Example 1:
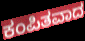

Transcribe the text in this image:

ಕಂಪಿತವಾದ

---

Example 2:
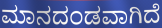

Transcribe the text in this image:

ಮಾನದಂಡವಾಗಿದೆ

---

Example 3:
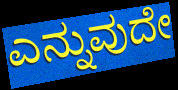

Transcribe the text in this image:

ಎನ್ನುವುದೇ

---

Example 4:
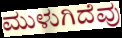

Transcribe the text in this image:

ಮುಳುಗಿದೆವು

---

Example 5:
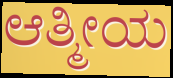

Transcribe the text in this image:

ಆತ್ಮೀಯ